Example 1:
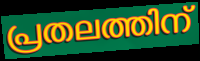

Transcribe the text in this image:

പ്രതലത്തിന്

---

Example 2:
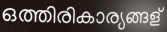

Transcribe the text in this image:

ഒത്തിരികാര്യങ്ങള്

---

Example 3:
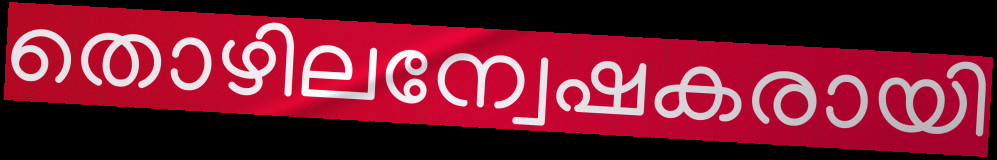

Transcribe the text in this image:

തൊഴിലന്വേഷകരായി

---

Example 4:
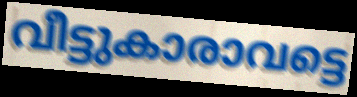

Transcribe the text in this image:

വീട്ടുകാരാവട്ടെ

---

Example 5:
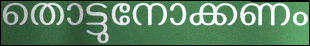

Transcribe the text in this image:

തൊട്ടുനോക്കണം